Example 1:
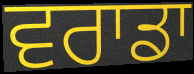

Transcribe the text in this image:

ਵਰਾਡਾ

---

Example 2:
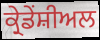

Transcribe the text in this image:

ਕ੍ਰੇਡੇਂਸ਼ੀਅਲ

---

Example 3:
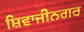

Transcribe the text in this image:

ਸ਼ਿਵਾਜੀਨਗਰ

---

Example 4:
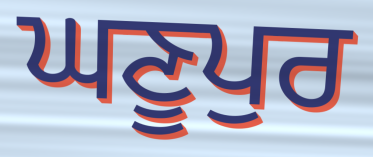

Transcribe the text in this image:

ਘਣੂਪੁਰ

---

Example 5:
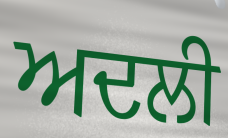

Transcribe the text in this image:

ਅਦਲੀ